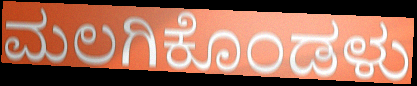
ಮಲಗಿಕೊಂಡಳು